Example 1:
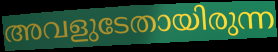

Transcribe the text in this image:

അവളുടേതായിരുന്ന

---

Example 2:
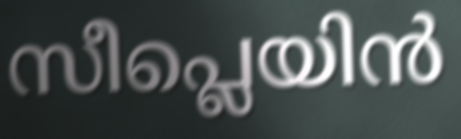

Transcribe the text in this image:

സീപ്ലെയിൻ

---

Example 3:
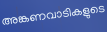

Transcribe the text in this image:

അങ്കണവാടികളുടെ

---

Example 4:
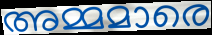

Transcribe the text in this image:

അമ്മമാരെ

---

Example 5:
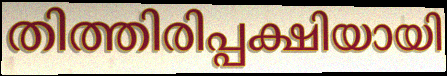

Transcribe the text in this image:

തിത്തിരിപ്പക്ഷിയായി